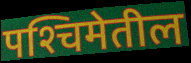
पश्चिमेतील